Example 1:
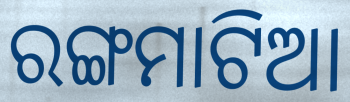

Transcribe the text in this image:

ରଙ୍ଗମାଟିଆ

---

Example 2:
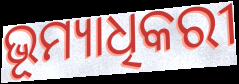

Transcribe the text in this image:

ଭୂମ୍ୟାଧିକରୀ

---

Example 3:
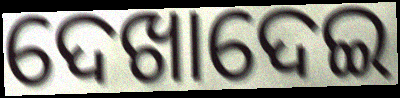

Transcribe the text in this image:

ଦେଖାଦେଇ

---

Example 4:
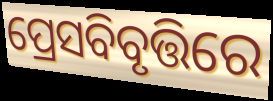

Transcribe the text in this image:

ପ୍ରେସବିବୃତ୍ତିରେ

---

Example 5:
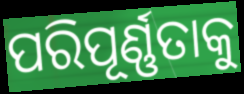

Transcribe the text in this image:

ପରିପୂର୍ଣ୍ଣତାକୁ